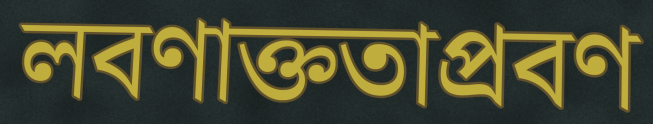
লবণাক্ততাপ্রবণ